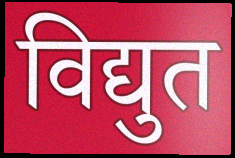
विद्युत